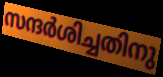
സന്ദർശിച്ചതിനു